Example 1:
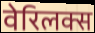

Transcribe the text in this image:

वेरिलक्स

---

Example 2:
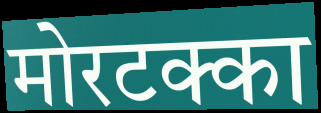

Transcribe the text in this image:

मोरटक्का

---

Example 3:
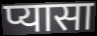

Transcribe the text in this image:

प्यासा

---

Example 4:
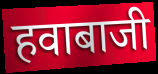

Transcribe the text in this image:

हवाबाजी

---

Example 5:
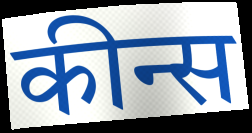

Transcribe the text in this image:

कीन्स